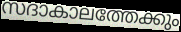
സദാകാലത്തേക്കും